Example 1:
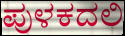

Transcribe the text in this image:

ಪುಳಕದಲಿ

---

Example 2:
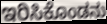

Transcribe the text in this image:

ಇರಿಸಿಕೊಂಡನು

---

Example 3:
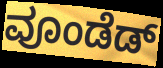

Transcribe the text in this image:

ವೂಂಡೆಡ್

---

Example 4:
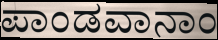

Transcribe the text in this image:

ಪಾಂಡವಾನಾಂ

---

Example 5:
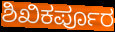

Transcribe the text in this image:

ಶಿಖಿಕರ್ಪೂರ